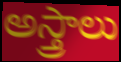
అస్త్రాలు